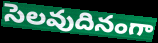
సెలవుదినంగా